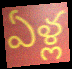
ఏళ్ల